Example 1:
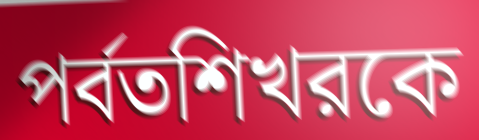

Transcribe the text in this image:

পর্বতশিখরকে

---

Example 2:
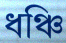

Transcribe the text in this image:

ধঞ্চি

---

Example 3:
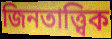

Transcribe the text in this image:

জিনতাত্ত্বিক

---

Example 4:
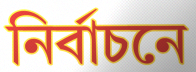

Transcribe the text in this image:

নির্বাচনে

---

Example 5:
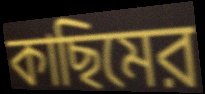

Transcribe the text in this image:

কাছিমের